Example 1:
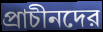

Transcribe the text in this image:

প্রাচীনদের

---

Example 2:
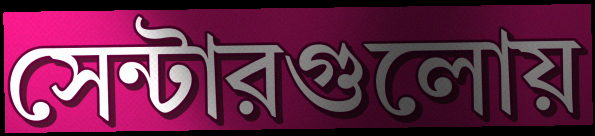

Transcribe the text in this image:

সেন্টারগুলোয়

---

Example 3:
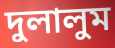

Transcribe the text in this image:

দুলালুম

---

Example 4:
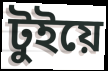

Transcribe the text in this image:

টুইয়ে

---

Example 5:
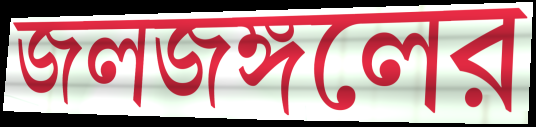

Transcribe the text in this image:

জলজঙ্গলের